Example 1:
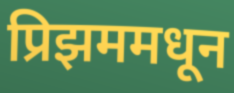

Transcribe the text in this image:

प्रिझममधून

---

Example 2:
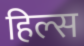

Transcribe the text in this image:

हिल्स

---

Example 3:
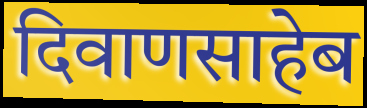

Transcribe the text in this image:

दिवाणसाहेब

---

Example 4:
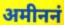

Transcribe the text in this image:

अमीननं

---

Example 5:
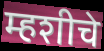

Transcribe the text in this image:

म्हशीचे